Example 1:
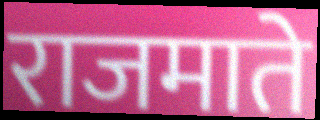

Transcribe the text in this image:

राजमाते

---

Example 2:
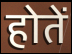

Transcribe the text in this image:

होतें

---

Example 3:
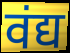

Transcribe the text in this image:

वंद्य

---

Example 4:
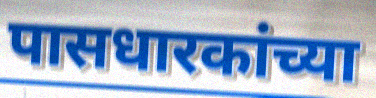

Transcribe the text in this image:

पासधारकांच्या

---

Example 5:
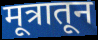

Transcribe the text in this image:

मूत्रातून